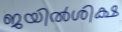
ജയിൽശിക്ഷ